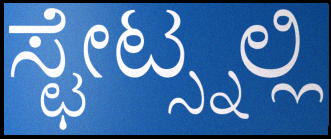
ಸ್ಟೇಟ್ಸ್ನಲ್ಲಿ